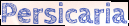
Persicaria